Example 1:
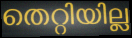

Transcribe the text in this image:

തെറ്റിയില്ല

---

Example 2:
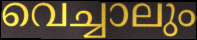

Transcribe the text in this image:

വെച്ചാലും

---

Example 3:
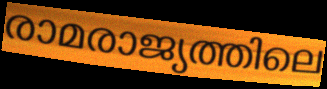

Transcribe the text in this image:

രാമരാജ്യത്തിലെ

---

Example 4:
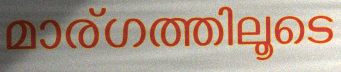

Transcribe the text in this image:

മാര്ഗത്തിലൂടെ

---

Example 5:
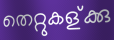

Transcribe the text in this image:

തെറ്റുകള്ക്കു